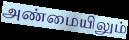
அண்மையிலும்